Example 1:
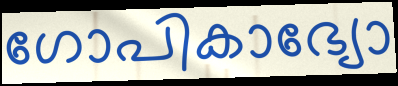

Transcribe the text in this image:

ഗോപികാഭ്യോ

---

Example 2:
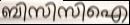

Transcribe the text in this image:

ബിസിസിഐ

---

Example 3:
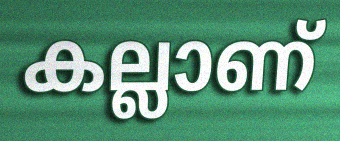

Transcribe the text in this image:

കല്ലാണ്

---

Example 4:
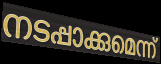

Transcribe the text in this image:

നടപ്പാക്കുമെന്ന്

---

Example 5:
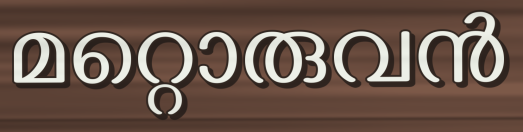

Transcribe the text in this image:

മറ്റൊരുവൻ